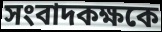
সংবাদকক্ষকে